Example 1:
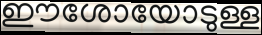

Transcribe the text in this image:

ഈശോയോടുള്ള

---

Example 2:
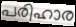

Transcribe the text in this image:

പരിഹാര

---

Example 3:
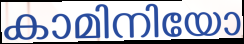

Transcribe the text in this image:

കാമിനിയോ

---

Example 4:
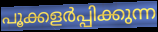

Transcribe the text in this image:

പൂക്കളർപ്പിക്കുന്ന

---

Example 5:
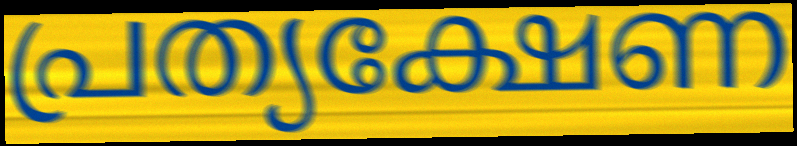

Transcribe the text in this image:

പ്രത്യക്ഷേണ